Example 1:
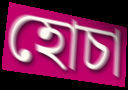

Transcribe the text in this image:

হোচা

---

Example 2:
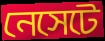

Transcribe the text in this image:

নেসেটে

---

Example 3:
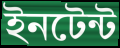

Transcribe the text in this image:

ইনটেন্ট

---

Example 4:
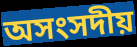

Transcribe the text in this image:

অসংসদীয়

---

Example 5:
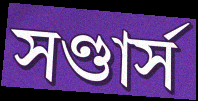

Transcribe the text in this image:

সণ্ডার্স